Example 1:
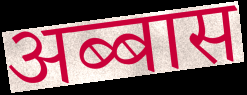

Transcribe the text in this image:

अब्बास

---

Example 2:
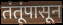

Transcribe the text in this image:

तंतूंपासून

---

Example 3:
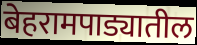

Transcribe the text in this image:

बेहरामपाड्यातील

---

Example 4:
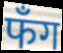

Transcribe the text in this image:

फँग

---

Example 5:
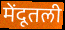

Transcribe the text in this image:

मेंदूतली